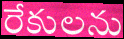
రేకులను